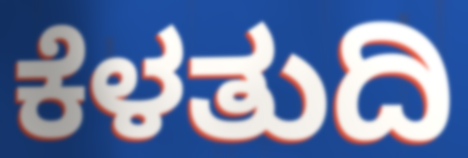
ಕೆಳತುದಿ